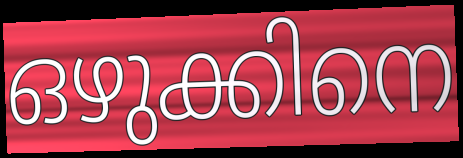
ഒഴുക്കിനെ